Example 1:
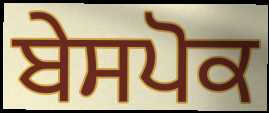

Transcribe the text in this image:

ਬੇਸਪੋਕ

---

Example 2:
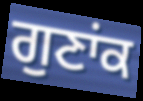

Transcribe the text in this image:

ਗੁਣਾਂਕ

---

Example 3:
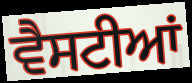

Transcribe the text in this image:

ਵੈਸਟੀਆਂ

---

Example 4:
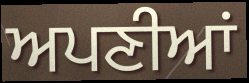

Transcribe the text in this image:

ਅਪਣੀਆਂ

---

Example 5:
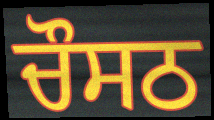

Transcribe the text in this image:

ਚੌਸਠ